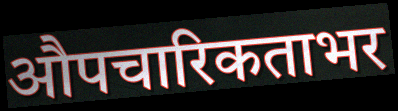
औपचारिकताभर